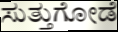
ಸುತ್ತುಗೋಡೆ